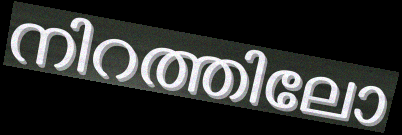
നിറത്തിലോ